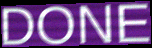
DONE